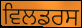
ਵਿਲਡਰਸ